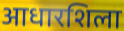
आधारशिला